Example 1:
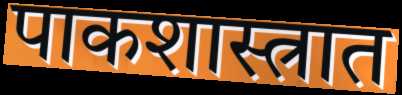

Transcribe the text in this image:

पाकशास्त्रात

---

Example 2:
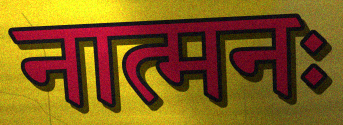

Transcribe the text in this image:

नात्मनः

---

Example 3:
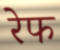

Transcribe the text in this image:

रेफ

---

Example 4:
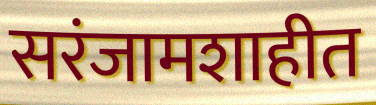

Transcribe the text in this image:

सरंजामशाहीत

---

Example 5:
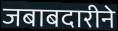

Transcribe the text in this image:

जबाबदारीने